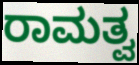
ರಾಮತ್ವ